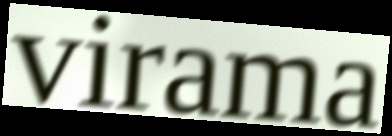
virama